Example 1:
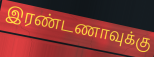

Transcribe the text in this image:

இரண்டணாவுக்கு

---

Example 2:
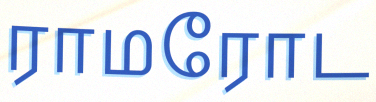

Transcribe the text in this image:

ராமரோட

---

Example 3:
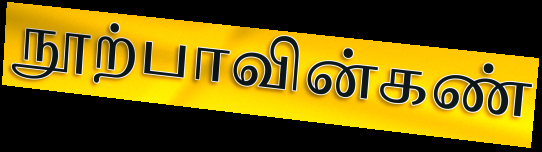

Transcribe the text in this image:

நூற்பாவின்கண்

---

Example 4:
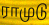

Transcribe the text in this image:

ராமுடு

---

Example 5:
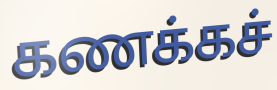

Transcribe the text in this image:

கணக்கச்